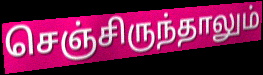
செஞ்சிருந்தாலும்